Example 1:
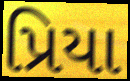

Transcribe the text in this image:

પ્રિયા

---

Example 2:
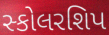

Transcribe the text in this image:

સ્કોલરશિપ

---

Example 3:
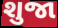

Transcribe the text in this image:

શુજા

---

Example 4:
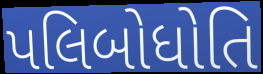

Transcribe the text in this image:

પલિબોધોતિ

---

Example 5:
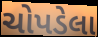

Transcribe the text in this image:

ચોપડેલા